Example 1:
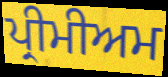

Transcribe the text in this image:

ਪ੍ਰੀਮੀਅਮ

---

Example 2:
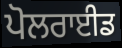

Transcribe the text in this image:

ਪੋਲਰਾਈਡ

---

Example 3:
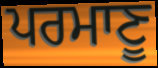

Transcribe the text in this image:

ਪਰਮਾਣੂ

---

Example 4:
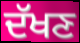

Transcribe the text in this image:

ਦੱਖਣ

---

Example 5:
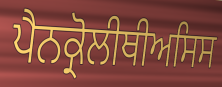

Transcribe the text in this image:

ਪੈਨਕ੍ਰੋਲੀਥੀਅਸਿਸ